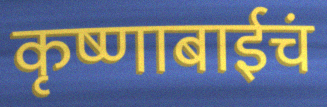
कृष्णाबाईचं